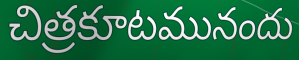
చిత్రకూటమునందు